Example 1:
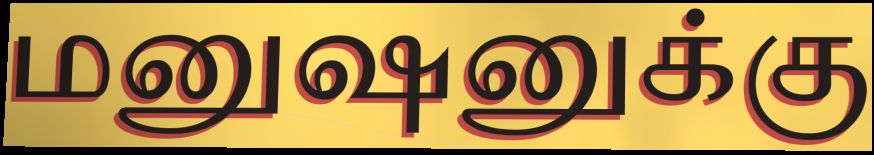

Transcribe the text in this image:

மனுஷனுக்கு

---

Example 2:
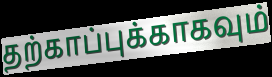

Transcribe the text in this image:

தற்காப்புக்காகவும்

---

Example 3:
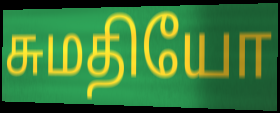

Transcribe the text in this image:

சுமதியோ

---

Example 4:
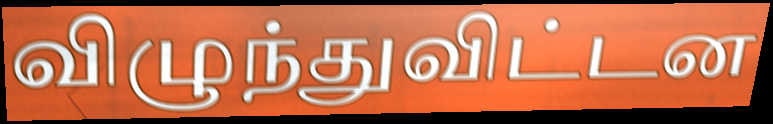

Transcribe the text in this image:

விழுந்துவிட்டன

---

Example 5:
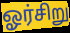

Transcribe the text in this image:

ஓர்சிறு